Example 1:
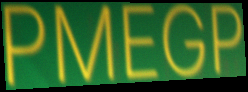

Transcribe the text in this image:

PMEGP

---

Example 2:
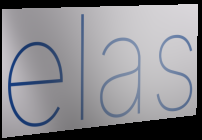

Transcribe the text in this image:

elas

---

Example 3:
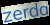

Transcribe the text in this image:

zerda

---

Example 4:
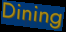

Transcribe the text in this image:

Dining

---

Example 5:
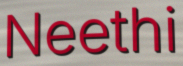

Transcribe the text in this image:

Neethi